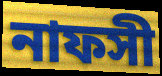
নাফসী